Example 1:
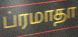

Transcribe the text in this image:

ப்ரமாதா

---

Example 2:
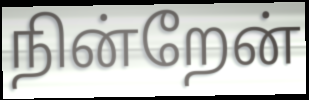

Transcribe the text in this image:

நின்றேன்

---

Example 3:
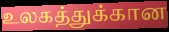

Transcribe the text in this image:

உலகத்துக்கான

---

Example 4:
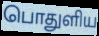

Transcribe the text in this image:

பொதுளிய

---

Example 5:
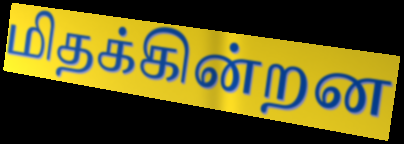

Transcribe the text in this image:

மிதக்கின்றன